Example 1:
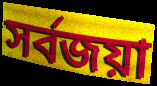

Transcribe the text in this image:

সর্বজয়া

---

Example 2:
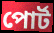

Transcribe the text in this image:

পোর্ট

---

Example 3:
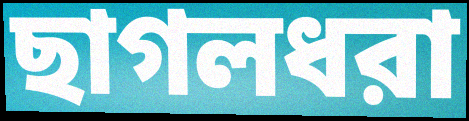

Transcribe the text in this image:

ছাগলধরা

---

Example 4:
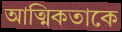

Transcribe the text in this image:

আত্মিকতাকে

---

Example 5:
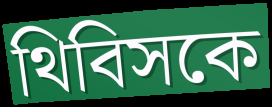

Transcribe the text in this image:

থিবিসকে